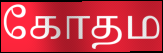
கோதம